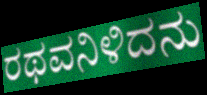
ರಥವನಿಳಿದನು